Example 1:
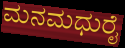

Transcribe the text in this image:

ಮನಮಧುರೈ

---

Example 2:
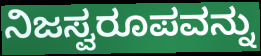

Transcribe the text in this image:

ನಿಜಸ್ವರೂಪವನ್ನು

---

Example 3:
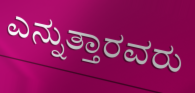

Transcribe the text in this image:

ಎನ್ನುತ್ತಾರವರು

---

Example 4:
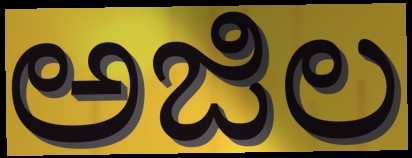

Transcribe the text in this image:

ಅಜಿಲ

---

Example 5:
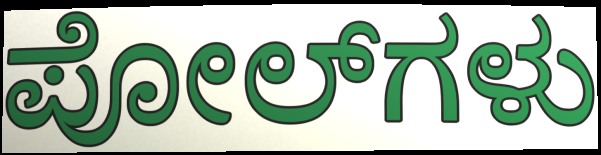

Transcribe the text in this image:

ಪೋಲ್‌ಗಳು